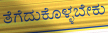
ತೆಗೆದುಕೊಳ್ಳಬೇಕು